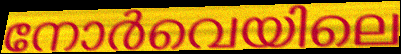
നോർവെയിലെ